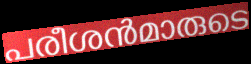
പരീശൻമാരുടെ